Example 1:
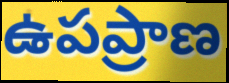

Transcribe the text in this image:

ఉపప్రాణ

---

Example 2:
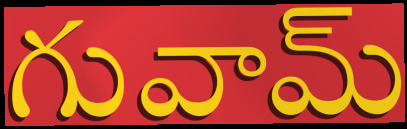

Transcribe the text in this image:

గువామ్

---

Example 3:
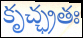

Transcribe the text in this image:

కృచ్ఛ్రతః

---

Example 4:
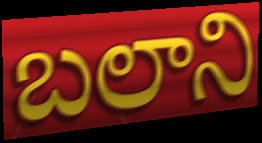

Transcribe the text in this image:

బలాని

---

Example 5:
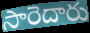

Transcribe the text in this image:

సారెదారు